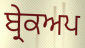
ਬ੍ਰੇਕਅਪ